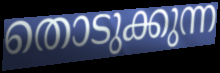
തൊടുക്കുന്ന